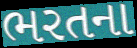
ભરતના